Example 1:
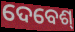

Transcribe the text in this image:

ଦେବେଶ୍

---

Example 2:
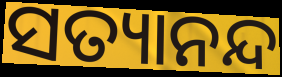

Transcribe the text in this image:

ସତ୍ୟାନନ୍ଦ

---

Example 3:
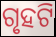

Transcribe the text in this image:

ଗୃହଟି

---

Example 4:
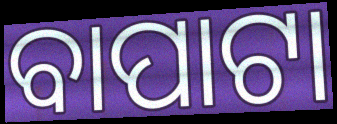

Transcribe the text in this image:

ବାପାଟା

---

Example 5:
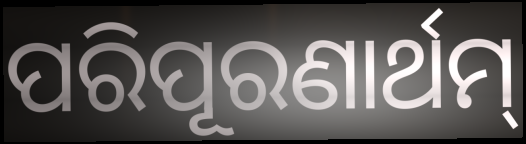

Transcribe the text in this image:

ପରିପୂରଣାର୍ଥମ୍